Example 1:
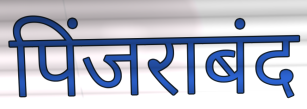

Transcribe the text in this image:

पिंजराबंद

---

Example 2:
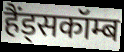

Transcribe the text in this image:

हैंड्सकॉम्ब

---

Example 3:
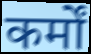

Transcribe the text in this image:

कर्मों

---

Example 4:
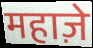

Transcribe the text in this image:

महाज़े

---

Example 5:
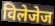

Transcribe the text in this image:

विलेजेज